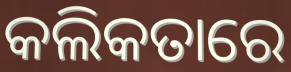
କଲିକତାରେ